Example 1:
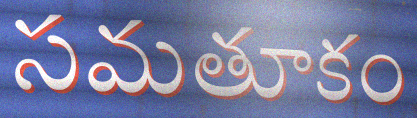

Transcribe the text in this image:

సమతూకం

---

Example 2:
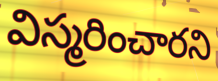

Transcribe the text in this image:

విస్మరించారని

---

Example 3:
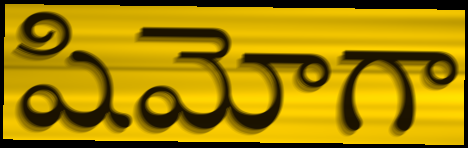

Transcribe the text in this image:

షిమోగా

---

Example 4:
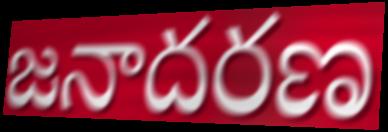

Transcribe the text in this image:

జనాదరణ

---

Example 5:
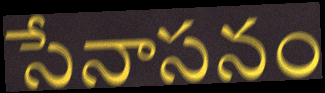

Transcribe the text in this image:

సేనాసనం